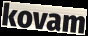
kovam